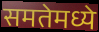
समतेमध्ये